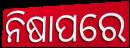
ନିଷାପରେ